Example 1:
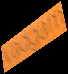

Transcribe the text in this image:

Vadgam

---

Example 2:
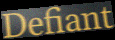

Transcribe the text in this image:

Defiant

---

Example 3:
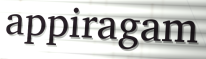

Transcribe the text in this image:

appiragam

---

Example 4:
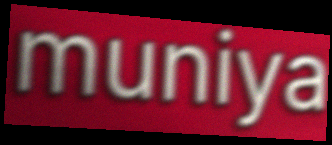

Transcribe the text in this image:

muniya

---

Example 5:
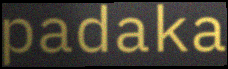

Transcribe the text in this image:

padaka